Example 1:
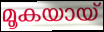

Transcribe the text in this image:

മൂകയായ്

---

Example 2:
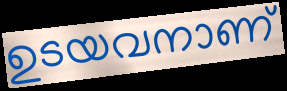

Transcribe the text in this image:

ഉടയവനാണ്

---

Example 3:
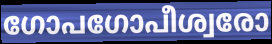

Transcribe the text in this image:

ഗോപഗോപീശ്വരോ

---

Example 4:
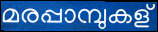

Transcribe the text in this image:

മരപ്പാമ്പുകള്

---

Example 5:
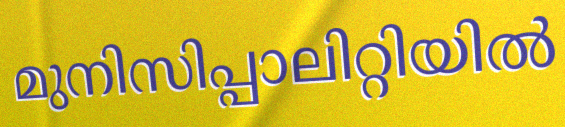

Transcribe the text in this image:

മുനിസിപ്പാലിറ്റിയിൽ